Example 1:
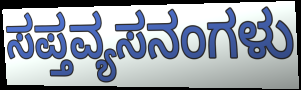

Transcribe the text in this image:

ಸಪ್ತವ್ಯಸನಂಗಳು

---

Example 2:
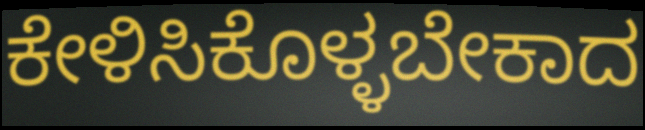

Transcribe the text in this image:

ಕೇಳಿಸಿಕೊಳ್ಳಬೇಕಾದ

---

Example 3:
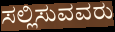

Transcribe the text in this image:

ಸಲ್ಲಿಸುವವರು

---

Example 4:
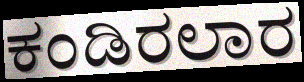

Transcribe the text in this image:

ಕಂಡಿರಲಾರ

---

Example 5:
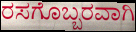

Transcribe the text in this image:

ರಸಗೊಬ್ಬರವಾಗಿ